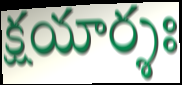
క్షయార్శః